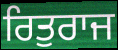
ਰਿਤੁਰਾਜ